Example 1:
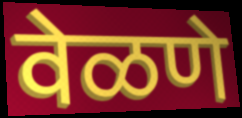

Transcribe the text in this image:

वेळणे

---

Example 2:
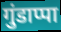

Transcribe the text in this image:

गुंडाप्पा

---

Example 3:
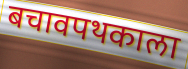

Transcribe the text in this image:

बचावपथकाला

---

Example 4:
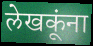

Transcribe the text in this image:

लेखकूंना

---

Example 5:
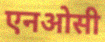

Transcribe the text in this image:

एनओसी